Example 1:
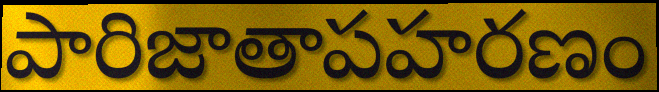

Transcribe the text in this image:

పారిజాతాపహరణం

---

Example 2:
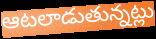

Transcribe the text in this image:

ఆటలాడుతున్నట్లు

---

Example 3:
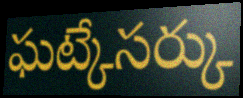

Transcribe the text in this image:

ఘట్కేసర్కు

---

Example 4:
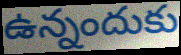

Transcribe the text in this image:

ఉన్నందుకు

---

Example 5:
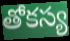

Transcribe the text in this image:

తోకస్య